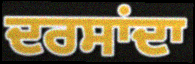
ਦਰਸਾਂਦਾ